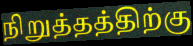
நிறுத்தத்திற்கு